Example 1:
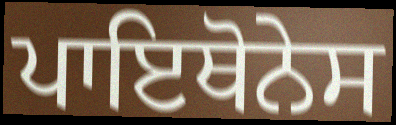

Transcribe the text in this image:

ਪਾਇਥੋਨੇਸ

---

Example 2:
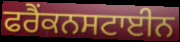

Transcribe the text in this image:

ਫਰੈਂਕਨਸਟਾਈਨ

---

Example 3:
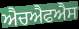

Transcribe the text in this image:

ਐਚਐਫਐਸ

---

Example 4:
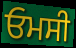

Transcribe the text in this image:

ਓਮਸੀ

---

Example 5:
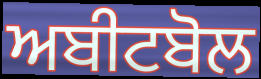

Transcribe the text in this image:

ਅਬੀਟਬੋਲ